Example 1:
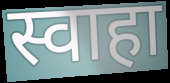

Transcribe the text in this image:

स्वाहा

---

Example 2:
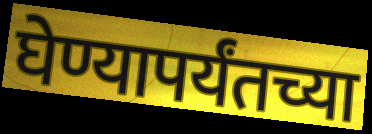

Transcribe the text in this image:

घेण्यापर्यंतच्या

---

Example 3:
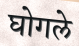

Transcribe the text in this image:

घोगले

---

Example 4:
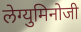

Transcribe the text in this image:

लेग्युमिनोजी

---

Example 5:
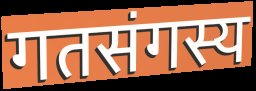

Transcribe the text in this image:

गतसंगस्य